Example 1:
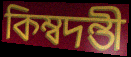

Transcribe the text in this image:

কিম্বদন্তী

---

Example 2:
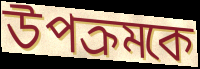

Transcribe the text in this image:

উপক্রমকে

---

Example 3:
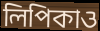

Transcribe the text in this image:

লিপিকাও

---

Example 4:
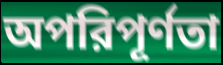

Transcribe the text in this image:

অপরিপূর্ণতা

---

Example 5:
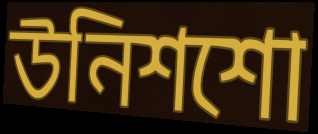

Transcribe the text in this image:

উনিশশো